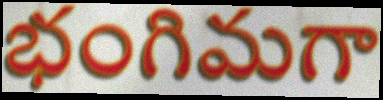
భంగిమగా